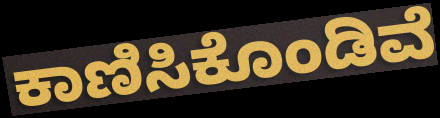
ಕಾಣಿಸಿಕೊಂಡಿವೆ